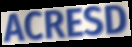
ACRESD